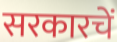
सरकारचें